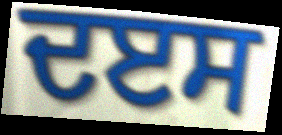
ਦੲਸ